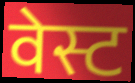
वेस्ट